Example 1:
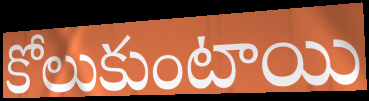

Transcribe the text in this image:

కోలుకుంటాయి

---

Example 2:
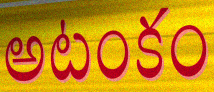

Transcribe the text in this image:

అటంకం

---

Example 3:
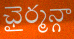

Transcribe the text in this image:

ఛైర్మన్గా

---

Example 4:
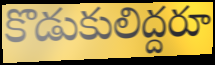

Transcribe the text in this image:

కొడుకులిద్దరూ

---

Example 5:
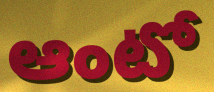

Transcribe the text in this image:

ఆంటో